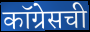
कॉग्रेसची